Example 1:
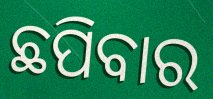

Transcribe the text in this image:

ଛପିବାର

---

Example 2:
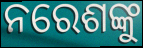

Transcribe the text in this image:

ନରେଶଙ୍କୁ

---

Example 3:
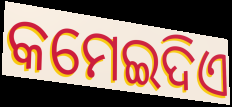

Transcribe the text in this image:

କମେଇଦିଏ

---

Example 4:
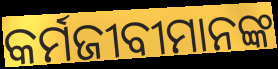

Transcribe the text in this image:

କର୍ମଜୀବୀମାନଙ୍କ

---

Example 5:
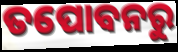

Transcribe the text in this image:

ତପୋବନରୁ